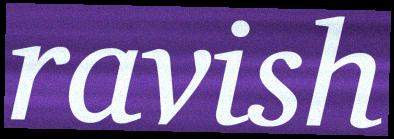
ravish